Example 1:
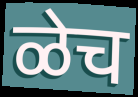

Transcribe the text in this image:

ळेच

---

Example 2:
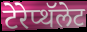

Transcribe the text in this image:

टेरेप्थॅलेट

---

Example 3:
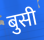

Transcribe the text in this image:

बुसी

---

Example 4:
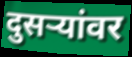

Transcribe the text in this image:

दुसर्‍यांवर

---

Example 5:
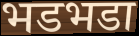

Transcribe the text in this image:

भडभडा